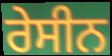
ਰੇਸੀਨ